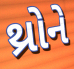
થ્રોને